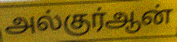
அல்குர்ஆன்